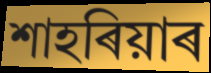
শাহৰিয়াৰ